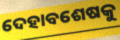
ଦେହାବଶେଷକୁ